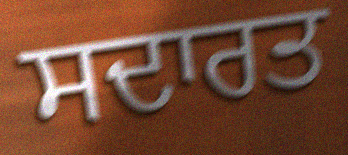
ਸਦਾਰਤ